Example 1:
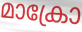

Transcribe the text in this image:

മാക്രോ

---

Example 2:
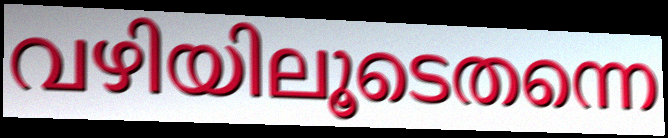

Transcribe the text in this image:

വഴിയിലൂടെതന്നെ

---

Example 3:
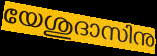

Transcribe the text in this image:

യേശുദാസിനു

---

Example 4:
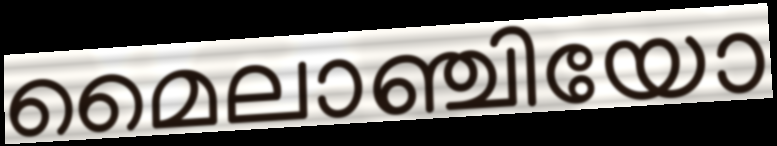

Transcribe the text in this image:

മൈലാഞ്ചിയോ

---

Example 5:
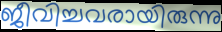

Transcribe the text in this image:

ജീവിച്ചവരായിരുന്നു